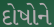
દોષોને